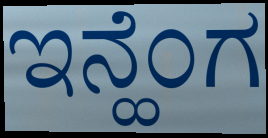
ಇನ್ಹೆಂಗ